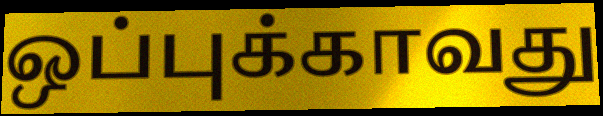
ஒப்புக்காவது